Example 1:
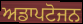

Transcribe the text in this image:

ਅਡਾਪਟੋਜਨ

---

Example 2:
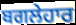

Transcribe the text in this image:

ਬਗਲੇਹਾਰ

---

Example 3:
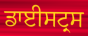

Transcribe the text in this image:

ਡਾਈਸਟ੍ਰਸ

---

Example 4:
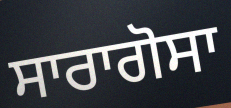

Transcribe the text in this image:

ਸਾਰਾਗੋਸਾ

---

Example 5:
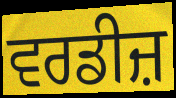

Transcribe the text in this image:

ਵਰਡੀਜ਼